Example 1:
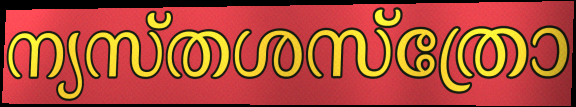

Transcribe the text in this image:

ന്യസ്തശസ്ത്രോ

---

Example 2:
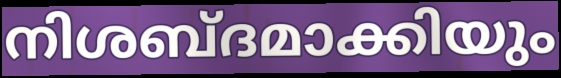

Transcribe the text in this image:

നിശബ്ദമാക്കിയും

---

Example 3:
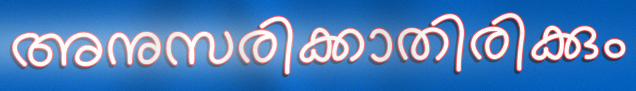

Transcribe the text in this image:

അനുസരിക്കാതിരിക്കും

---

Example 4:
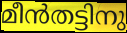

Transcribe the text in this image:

മീൻതട്ടിനു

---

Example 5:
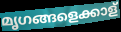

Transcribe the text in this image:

മൃഗങ്ങളെക്കാള്